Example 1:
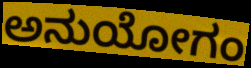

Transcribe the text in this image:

ಅನುಯೋಗಂ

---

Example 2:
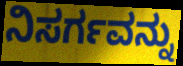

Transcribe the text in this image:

ನಿಸರ್ಗವನ್ನು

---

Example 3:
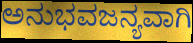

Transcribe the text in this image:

ಅನುಭವಜನ್ಯವಾಗಿ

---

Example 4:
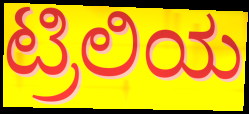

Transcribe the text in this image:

ಟ್ರಿಲಿಯ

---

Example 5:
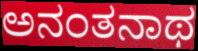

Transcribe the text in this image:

ಅನಂತನಾಥ